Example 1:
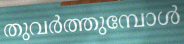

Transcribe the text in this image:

തുവർത്തുമ്പോൾ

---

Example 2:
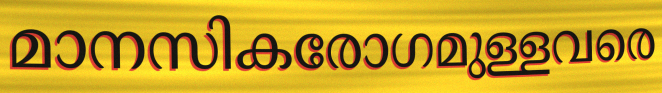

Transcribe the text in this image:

മാനസികരോഗമുള്ളവരെ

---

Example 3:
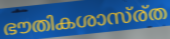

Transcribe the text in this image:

ഭൗതികശാസ്ര്ത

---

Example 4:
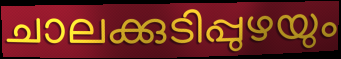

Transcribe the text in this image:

ചാലക്കുടിപ്പുഴയും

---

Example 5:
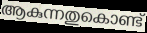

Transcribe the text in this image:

ആകുന്നതുകൊണ്ട്